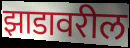
झाडावरील